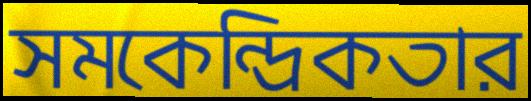
সমকেন্দ্রিকতার